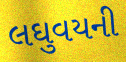
લઘુવયની